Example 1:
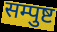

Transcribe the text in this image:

सम्पुष्ट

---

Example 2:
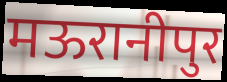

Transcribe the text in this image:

मऊरानीपुर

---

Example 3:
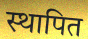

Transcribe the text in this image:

स्‍थापित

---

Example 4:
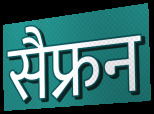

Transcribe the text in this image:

सैफ्रन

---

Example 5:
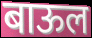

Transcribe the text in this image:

बाऊल